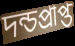
দন্ডপ্রাপ্ত